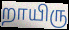
றாயிரு